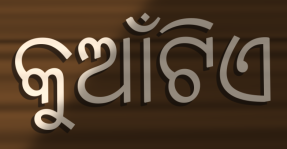
କୁଆଁଟିଏ